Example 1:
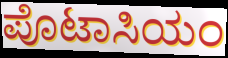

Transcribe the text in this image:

ಪೊಟಾಸಿಯಂ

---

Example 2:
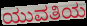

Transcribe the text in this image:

ಯುವತಿಯ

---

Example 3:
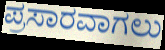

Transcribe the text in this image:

ಪ್ರಸಾರವಾಗಲು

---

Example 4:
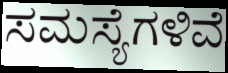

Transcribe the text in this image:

ಸಮಸ್ಯೆಗಳಿವೆ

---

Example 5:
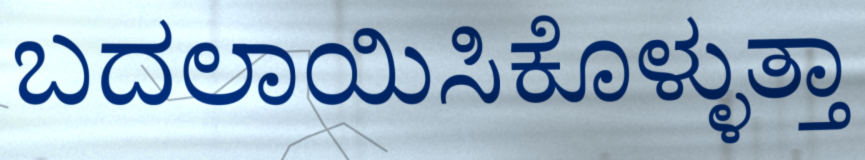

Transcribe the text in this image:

ಬದಲಾಯಿಸಿಕೊಳ್ಳುತ್ತಾ